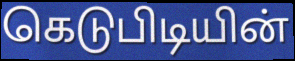
கெடுபிடியின்